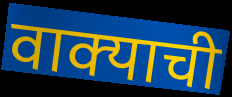
वाक्याची